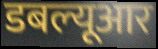
डबल्यूआर